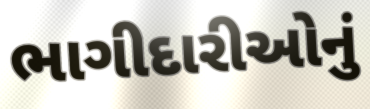
ભાગીદારીઓનું